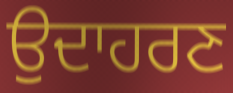
ਉਦਾਹਰਣ